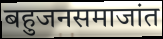
बहुजनसमाजांत